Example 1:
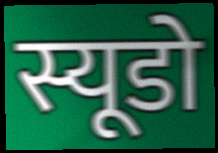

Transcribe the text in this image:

स्यूडो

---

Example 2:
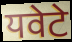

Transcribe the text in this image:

यवेटे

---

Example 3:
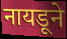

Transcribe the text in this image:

नायडूने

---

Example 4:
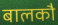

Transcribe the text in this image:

बालकौ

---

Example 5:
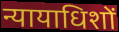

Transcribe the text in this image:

न्यायाधिशों